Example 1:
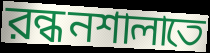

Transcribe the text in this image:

রন্ধনশালাতে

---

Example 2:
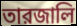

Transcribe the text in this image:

তারজালি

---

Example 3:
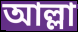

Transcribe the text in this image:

আল্লা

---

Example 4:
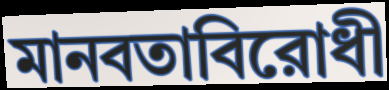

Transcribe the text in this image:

মানবতাবিরোধী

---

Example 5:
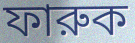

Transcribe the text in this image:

ফারুক